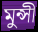
মুন্সী